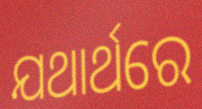
ଯଥାର୍ଥରେ